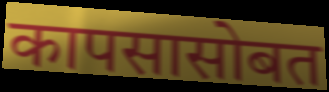
कापसासोबत